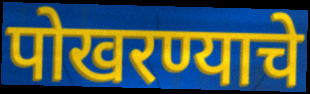
पोखरण्याचे